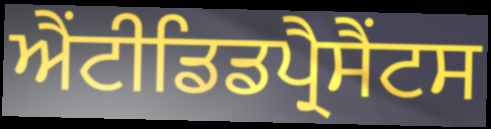
ਐਂਟੀਡਿਡਪ੍ਰੈਸੈਂਟਸ